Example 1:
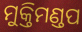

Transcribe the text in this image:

ମୁକ୍ତିମଣ୍ଡପ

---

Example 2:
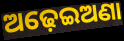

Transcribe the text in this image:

ଅଢ଼େଇଅଣା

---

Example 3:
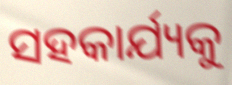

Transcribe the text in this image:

ସହକାର୍ଯ୍ୟକୁ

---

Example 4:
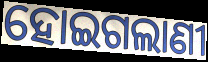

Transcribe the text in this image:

ହୋଇଗଲାଣୀ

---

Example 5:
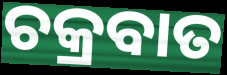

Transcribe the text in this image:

ଚକ୍ରବାତ